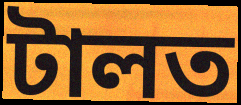
টালত